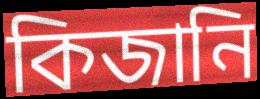
কিজানি